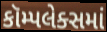
કૉમ્પલેક્સમાં